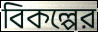
বিকল্পের